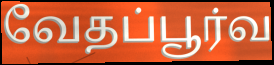
வேதப்பூர்வ